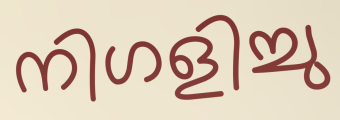
നിഗളിച്ചു